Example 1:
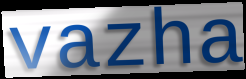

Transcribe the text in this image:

vazha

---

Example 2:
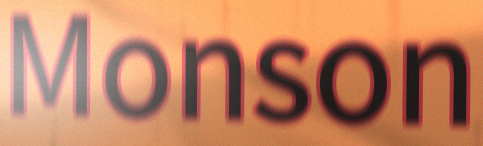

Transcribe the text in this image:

Monson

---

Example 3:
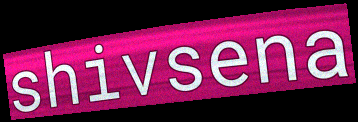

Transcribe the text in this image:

shivsena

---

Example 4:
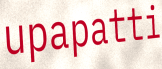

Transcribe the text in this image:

upapatti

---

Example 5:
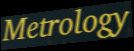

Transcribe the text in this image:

Metrology